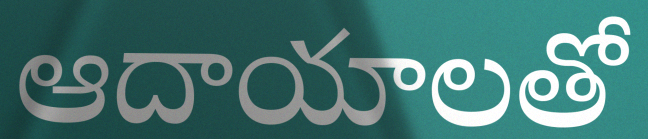
ఆదాయాలతో